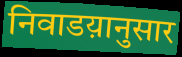
निवाडय़ानुसार